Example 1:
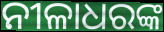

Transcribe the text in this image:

ନୀଳାଧରଙ୍କ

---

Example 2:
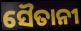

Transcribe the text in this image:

ସୈତାନୀ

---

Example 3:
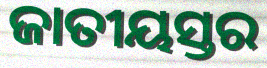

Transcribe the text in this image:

ଜାତୀୟସ୍ତର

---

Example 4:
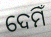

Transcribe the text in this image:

ଦେମିଁ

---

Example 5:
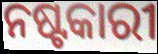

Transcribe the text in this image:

ନଷ୍ଟକାରୀ